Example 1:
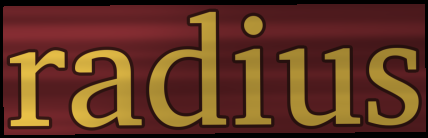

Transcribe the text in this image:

radius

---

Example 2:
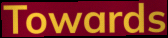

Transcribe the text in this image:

Towards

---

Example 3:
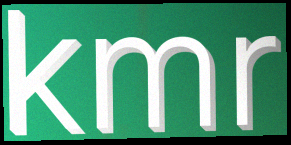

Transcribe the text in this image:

kmr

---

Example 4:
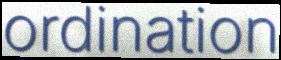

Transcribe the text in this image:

ordination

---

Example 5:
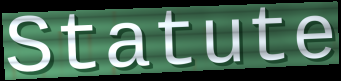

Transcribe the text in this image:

Statute